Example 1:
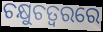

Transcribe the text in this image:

ଚକ୍ଷୁଚତ୍ୱରରେ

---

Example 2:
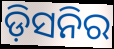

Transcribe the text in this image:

ଡ଼ିସନିର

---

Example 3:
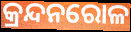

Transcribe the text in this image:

କ୍ରନ୍ଦନରୋଳ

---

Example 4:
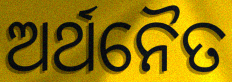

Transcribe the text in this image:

ଅର୍ଥନୈତ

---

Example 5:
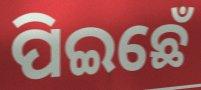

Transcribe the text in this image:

ପିଇଛେଁ